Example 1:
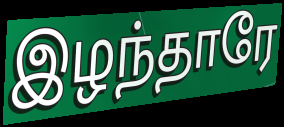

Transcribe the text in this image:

இழந்தாரே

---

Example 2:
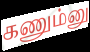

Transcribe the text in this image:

கணும்னு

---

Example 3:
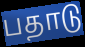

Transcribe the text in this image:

பதாடு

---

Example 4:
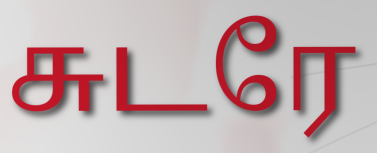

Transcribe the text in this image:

சுடரே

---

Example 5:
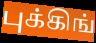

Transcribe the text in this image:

புக்கிங்